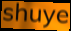
shuye